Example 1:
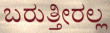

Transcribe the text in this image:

ಬರುತ್ತೀರಲ್ಲ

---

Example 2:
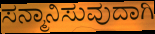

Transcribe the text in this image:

ಸನ್ಮಾನಿಸುವುದಾಗಿ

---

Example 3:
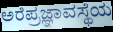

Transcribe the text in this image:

ಅರೆಪ್ರಜ್ಞಾವಸ್ಥೆಯ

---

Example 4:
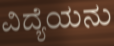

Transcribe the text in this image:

ವಿದ್ಯೆಯನು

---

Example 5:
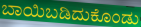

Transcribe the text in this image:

ಬಾಯಿಬಡಿದುಕೊಂಡು